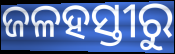
ଜଳହସ୍ତୀରୁ